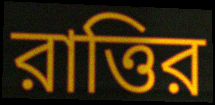
রাত্তির